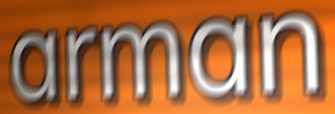
arman